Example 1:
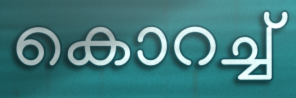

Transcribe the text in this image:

കൊറച്ച്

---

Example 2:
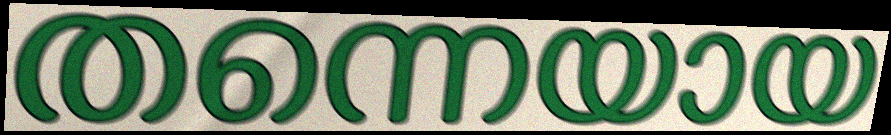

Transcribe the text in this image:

തന്നെയായ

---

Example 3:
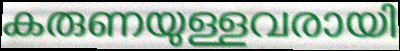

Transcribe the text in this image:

കരുണയുള്ളവരായി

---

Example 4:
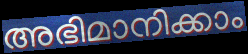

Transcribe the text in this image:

അഭിമാനിക്കാം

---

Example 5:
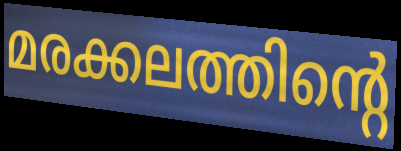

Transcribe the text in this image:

മരക്കലത്തിന്റെ